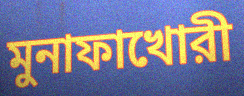
মুনাফাখোরী